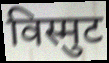
विस्मुट